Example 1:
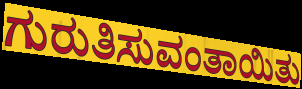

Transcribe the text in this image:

ಗುರುತಿಸುವಂತಾಯಿತು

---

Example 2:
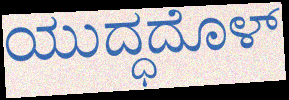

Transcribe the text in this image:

ಯುದ್ಧದೊಳ್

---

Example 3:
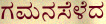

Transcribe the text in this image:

ಗಮನಸೆಳೆದ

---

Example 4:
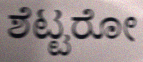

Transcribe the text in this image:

ಶೆಟ್ಟರೋ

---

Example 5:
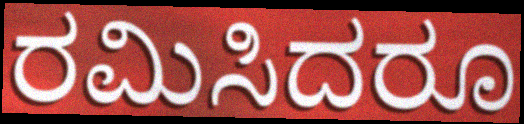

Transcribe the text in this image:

ರಮಿಸಿದರೂ